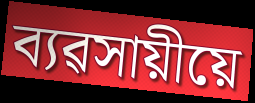
ব্যৱসায়ীয়ে